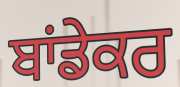
ਬਾਂਡੇਕਰ